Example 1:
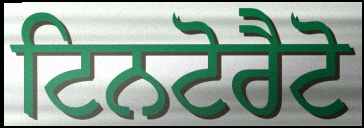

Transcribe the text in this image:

ਟਿਨਟੋਰੈਟੋ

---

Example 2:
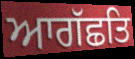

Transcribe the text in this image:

ਆਗੱਛਤਿ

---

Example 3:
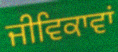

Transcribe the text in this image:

ਜੀਵਿਕਾਵਾਂ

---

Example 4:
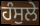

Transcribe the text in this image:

ਹੰਸੁਲੇ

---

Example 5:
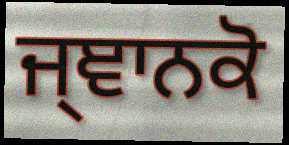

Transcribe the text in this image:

ਜ੍ਞਾਨਕੋ